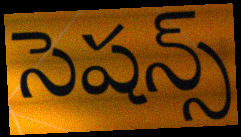
సెషన్స్